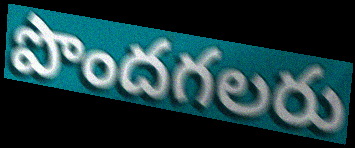
పొందగలరు